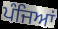
ਪੰਜਿਆਂ